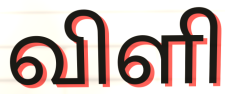
விளி